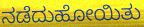
ನಡೆದುಹೋಯಿತು